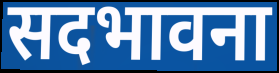
सदभावना